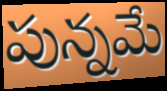
పున్నమే